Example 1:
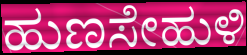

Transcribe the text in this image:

ಹುಣಸೇಹುಳಿ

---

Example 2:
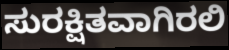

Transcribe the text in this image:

ಸುರಕ್ಷಿತವಾಗಿರಲಿ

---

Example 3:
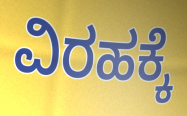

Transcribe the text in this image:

ವಿರಹಕ್ಕೆ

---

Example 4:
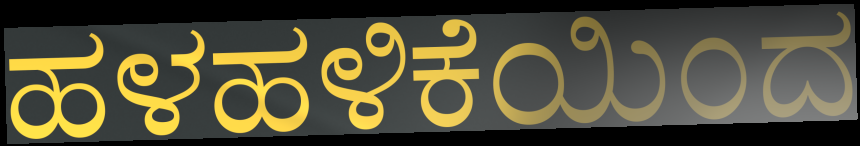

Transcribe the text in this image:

ಹಳಹಳಿಕೆಯಿಂದ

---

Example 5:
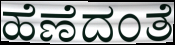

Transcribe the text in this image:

ಹೆಣೆದಂತೆ